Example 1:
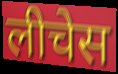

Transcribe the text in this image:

लीचेस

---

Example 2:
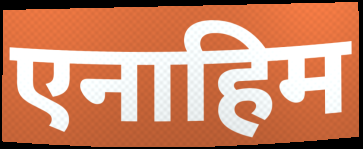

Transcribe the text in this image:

एनाहिम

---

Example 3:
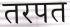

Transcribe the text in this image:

तरपत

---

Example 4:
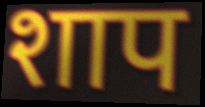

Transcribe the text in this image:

शाप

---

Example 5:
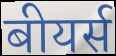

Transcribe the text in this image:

बीयर्स